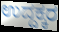
ಉದ್ದಕ್ಕರ